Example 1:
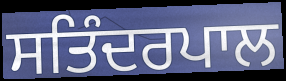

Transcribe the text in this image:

ਸਤਿੰਦਰਪਾਲ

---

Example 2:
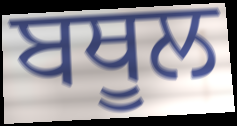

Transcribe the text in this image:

ਬਥੂਲ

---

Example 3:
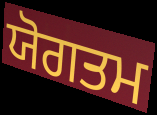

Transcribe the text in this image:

ਯੋਗਤਮ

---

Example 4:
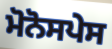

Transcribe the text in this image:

ਮੋਨੋਸਪੇਸ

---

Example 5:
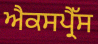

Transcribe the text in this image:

ਐਕਸਪ੍ਰੈੱਸ